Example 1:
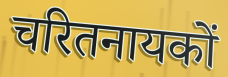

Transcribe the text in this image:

चरितनायकों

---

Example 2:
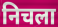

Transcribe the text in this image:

निचला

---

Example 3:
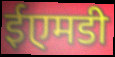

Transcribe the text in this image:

ईएमडी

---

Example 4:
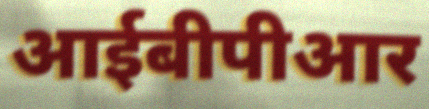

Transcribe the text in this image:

आईबीपीआर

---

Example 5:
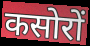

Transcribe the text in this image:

कसोरों